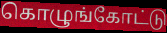
கொழுங்கோட்டு